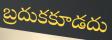
బ్రదుకకూడదు